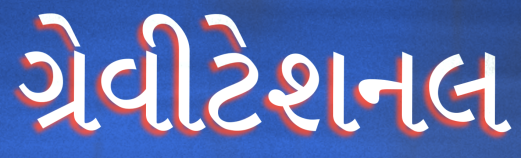
ગ્રેવીટેશનલ